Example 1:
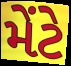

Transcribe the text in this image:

મેંટે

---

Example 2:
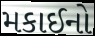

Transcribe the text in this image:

મકાઈનો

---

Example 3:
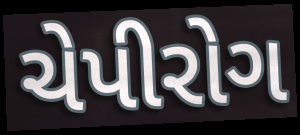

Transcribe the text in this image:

ચેપીરોગ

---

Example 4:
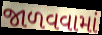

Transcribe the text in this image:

જાળવવામાં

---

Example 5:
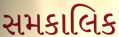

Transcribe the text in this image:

સમકાલિક